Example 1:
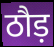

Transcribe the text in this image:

ठौड़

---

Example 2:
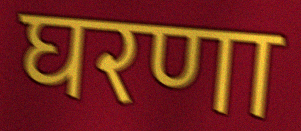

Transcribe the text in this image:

घरणा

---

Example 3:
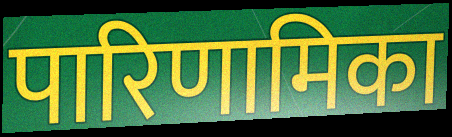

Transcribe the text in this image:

पारिणामिका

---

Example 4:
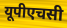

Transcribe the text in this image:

यूपीएचसी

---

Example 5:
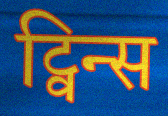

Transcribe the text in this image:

ट्विन्स